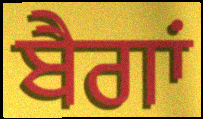
ਬੈਗਾਂ